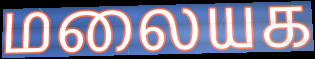
மலையக